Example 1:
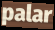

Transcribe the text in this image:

palar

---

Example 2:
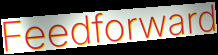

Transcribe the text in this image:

Feedforward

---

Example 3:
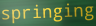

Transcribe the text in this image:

springing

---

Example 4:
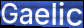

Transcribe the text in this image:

Gaelic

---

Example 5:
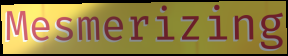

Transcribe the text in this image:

Mesmerizing